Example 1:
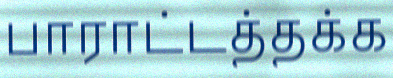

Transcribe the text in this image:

பாராட்டத்தக்க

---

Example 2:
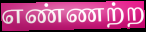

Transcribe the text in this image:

எண்ணற்ற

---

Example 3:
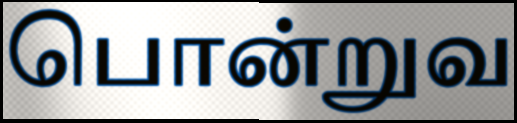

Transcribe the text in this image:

பொன்றுவ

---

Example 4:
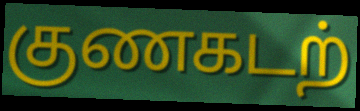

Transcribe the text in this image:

குணகடற்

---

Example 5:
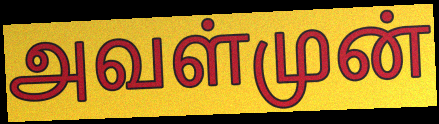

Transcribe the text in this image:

அவள்முன்